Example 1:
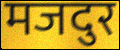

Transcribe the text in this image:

मजदुर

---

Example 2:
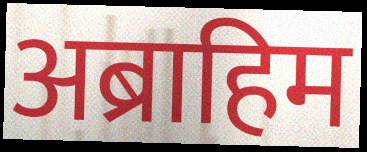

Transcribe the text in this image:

अब्राहिम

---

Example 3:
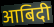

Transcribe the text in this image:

आबिदी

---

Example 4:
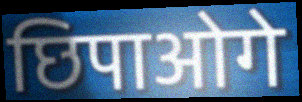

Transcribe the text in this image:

छिपाओगे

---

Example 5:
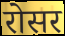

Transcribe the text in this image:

रोसर